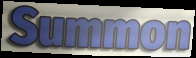
Summon